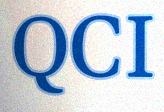
QCI